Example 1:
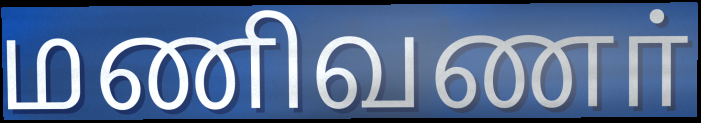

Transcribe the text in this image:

மணிவணர்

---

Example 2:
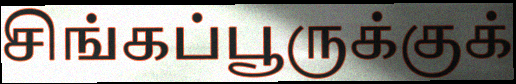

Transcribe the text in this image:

சிங்கப்பூருக்குக்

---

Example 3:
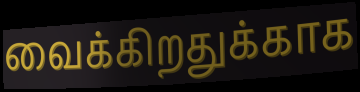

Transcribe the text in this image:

வைக்கிறதுக்காக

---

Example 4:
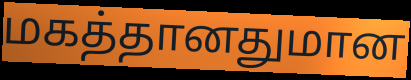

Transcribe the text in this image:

மகத்தானதுமான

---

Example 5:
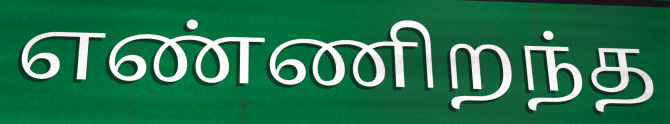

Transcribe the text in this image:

எண்ணிறந்த